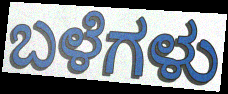
ಬಳೆಗಳು